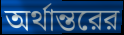
অর্থান্তরের